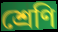
শ্রেণি